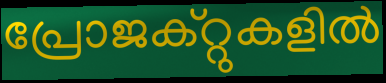
പ്രോജക്റ്റുകളിൽ